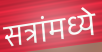
सत्रांमध्ये